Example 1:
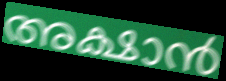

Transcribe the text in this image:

അക്ഷാൻ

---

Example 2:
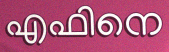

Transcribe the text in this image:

എഫിനെ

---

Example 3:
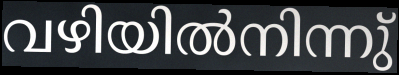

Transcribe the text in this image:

വഴിയിൽനിന്നു്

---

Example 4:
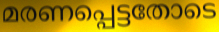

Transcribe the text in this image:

മരണപ്പെട്ടതോടെ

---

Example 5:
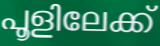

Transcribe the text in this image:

പൂളിലേക്ക്